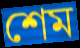
শেম